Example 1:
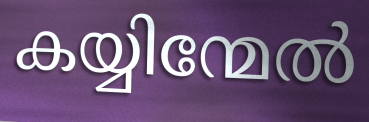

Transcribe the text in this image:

കയ്യിന്മേൽ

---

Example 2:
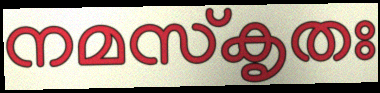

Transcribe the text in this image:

നമസ്കൃതഃ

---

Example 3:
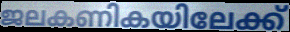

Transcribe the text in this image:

ജലകണികയിലേക്ക്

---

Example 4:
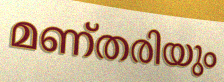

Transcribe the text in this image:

മണ്തരിയും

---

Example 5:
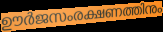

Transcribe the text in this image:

ഊർജസംരക്ഷണത്തിനും